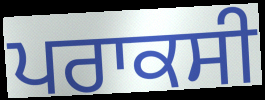
ਪਰਾਕਸੀ